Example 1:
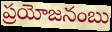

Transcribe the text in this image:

ప్రయోజనంబు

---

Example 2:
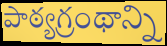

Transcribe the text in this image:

పాఠ్యగ్రంథాన్ని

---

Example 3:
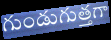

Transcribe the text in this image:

గుండుగుత్తగా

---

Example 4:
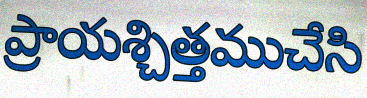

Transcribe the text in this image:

ప్రాయశ్చిత్తముచేసి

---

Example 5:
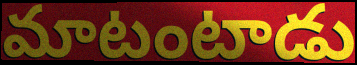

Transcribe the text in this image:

మాటంటాడు